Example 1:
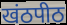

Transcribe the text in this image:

खंठपीठ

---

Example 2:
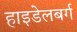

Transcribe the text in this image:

हाइडेलबर्ग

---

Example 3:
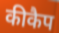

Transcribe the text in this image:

कीकैप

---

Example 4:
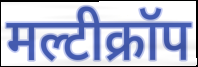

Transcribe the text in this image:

मल्टीक्रॉप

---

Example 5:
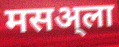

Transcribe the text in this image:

मसअ्ला